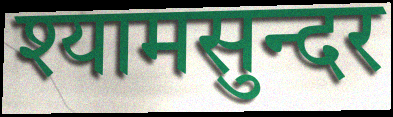
श्यामसुन्दर